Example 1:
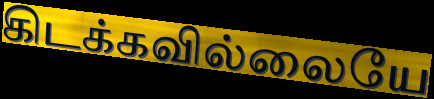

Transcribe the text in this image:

கிடக்கவில்லையே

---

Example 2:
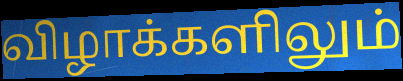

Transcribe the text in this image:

விழாக்களிலும்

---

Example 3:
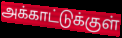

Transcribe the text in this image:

அக்காட்டுக்குள்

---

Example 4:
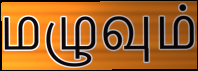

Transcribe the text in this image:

மழுவும்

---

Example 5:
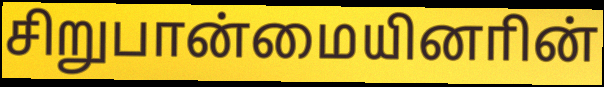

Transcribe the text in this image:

சிறுபான்மையினரின்